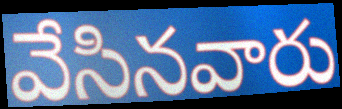
వేసినవారు